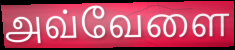
அவ்வேளை